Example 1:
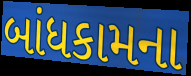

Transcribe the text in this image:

બાંધકામના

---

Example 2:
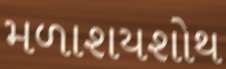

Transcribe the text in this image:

મળાશયશોથ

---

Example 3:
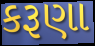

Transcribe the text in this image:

કરૂણા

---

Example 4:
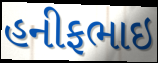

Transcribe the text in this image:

હનીફભાઇ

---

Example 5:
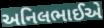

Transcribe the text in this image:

અનિલભાઈએ